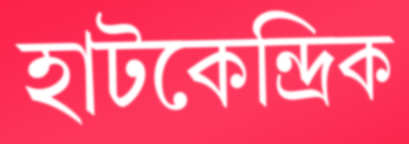
হাটকেন্দ্রিক